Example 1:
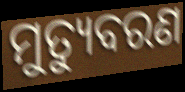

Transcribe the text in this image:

ମୁତ୍ୟୁବରଣ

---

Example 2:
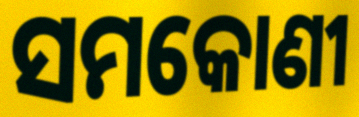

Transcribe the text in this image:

ସମକୋଣୀ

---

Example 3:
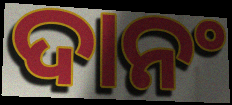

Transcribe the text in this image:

ଦାନଂ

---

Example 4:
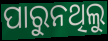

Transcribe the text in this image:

ପାରୁନଥିଲୁ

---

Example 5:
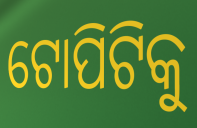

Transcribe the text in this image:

ଟୋପିଟିକୁ